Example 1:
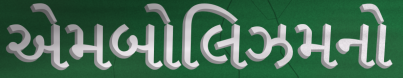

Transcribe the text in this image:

એમબોલિઝમનો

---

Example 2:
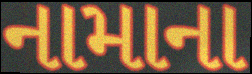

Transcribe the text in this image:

નામાના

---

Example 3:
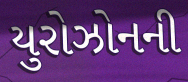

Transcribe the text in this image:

યુરોઝોનની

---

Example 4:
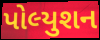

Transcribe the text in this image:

પોલ્યુશન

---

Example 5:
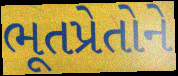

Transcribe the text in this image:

ભૂતપ્રેતોને